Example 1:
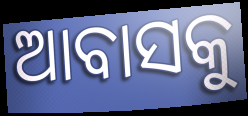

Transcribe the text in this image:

ଆବାସକୁ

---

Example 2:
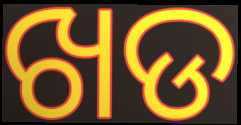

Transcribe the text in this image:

ଖଡ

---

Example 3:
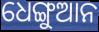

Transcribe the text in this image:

ଧେଙ୍ଗୁଆନ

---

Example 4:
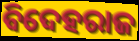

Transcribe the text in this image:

ବିଦେହରାଜ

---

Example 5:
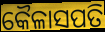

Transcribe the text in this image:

କୈଳାସପତି